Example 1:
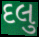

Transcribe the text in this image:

દલુ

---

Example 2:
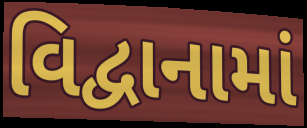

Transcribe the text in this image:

વિદ્વાનામાં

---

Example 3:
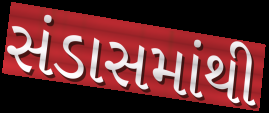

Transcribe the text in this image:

સંડાસમાંથી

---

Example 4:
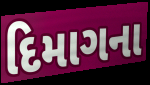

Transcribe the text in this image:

દિમાગના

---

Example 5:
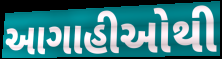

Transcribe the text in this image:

આગાહીઓથી